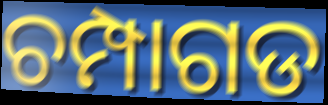
ଚମ୍ପାଗଡ